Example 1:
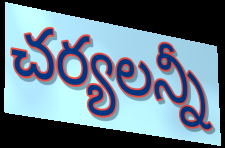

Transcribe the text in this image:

చర్యలన్నీ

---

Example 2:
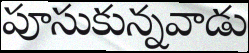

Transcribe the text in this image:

పూసుకున్నవాడు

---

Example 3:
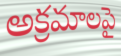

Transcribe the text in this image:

అక్రమాలపై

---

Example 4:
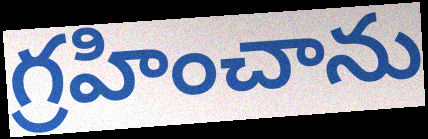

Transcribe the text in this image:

గ్రహించాను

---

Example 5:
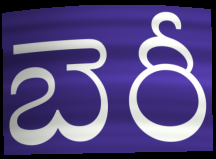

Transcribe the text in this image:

బెరీ